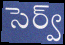
సెర్వ్